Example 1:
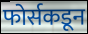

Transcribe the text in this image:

फोर्सकडून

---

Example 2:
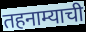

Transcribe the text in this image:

तहनाम्याची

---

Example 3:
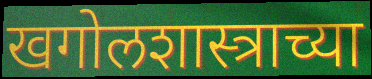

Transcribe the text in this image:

खगोलशास्त्राच्या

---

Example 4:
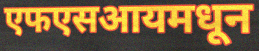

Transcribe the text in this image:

एफएसआयमधून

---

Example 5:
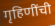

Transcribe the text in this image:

गृहिणींची